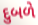
દુબળે